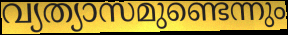
വ്യത്യാസമുണ്ടെന്നും